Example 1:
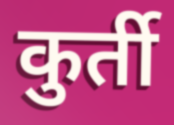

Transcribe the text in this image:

कुर्ती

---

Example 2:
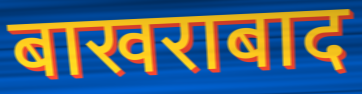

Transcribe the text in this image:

बाखराबाद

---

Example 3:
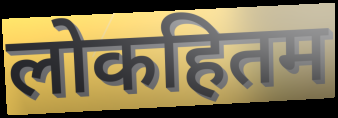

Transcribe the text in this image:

लोकहितम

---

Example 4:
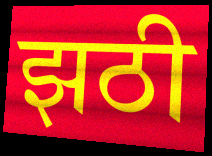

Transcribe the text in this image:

झठी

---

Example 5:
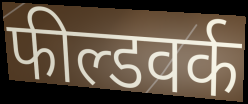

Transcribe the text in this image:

फील्डवर्क